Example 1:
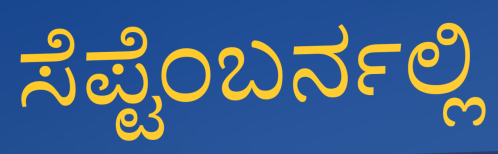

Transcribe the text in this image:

ಸೆಪ್ಟೆಂಬರ್ನಲ್ಲಿ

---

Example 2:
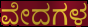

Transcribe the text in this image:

ವೇದಗಳ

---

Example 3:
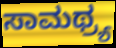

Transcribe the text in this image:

ಸಾಮಥ್ರ್ಯ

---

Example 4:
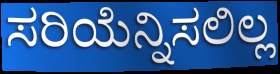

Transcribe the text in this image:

ಸರಿಯೆನ್ನಿಸಲಿಲ್ಲ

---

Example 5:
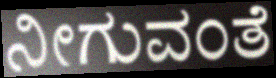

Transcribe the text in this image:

ನೀಗುವಂತೆ